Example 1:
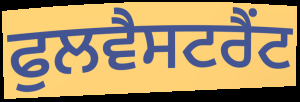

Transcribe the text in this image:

ਫੁਲਵੈਸਟਰੈਂਟ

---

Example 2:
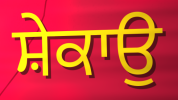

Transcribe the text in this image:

ਸ਼ੇਕਾਉ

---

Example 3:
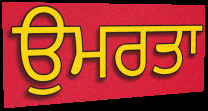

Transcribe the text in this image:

ਉਮਰਤਾ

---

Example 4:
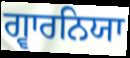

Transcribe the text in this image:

ਗ੍ਵਾਰਨਿਯਾ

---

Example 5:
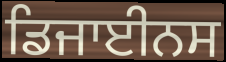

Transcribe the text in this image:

ਡਿਜਾਈਨਸ